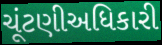
ચૂંટણીઅધિકારી